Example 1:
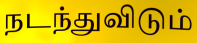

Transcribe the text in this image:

நடந்துவிடும்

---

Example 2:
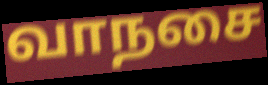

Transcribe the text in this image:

வாநசை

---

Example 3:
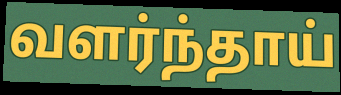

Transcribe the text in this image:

வளர்ந்தாய்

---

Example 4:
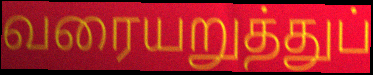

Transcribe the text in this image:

வரையறுத்துப்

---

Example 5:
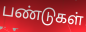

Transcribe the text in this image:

பண்டுகள்